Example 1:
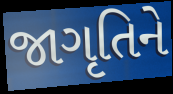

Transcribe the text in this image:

જાગૃતિને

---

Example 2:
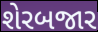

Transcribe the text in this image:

શેરબજાર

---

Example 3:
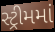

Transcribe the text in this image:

સ્ટ્રીમમાં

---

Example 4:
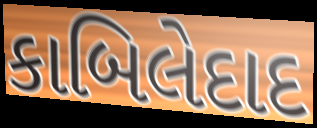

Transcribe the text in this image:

કાબિલેદાદ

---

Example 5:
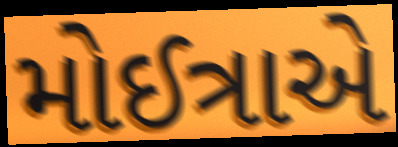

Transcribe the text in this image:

મોઈત્રાએ